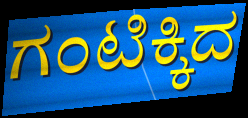
ಗಂಟಿಕ್ಕಿದ